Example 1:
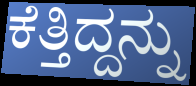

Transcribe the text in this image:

ಕೆತ್ತಿದ್ದನ್ನು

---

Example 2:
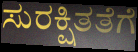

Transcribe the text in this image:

ಸುರಕ್ಷಿತತೆಗೆ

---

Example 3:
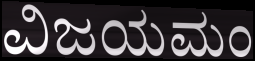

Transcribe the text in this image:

ವಿಜಯಮಂ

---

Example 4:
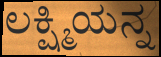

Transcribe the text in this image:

ಲಕ್ಷ್ಮಿಯನ್ನ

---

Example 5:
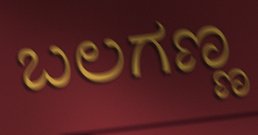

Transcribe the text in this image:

ಬಲಗಣ್ಣ